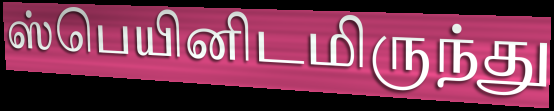
ஸ்பெயினிடமிருந்து